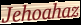
Jehoahaz